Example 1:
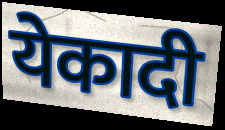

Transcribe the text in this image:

येकादी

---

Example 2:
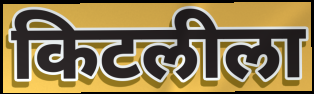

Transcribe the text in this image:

किटलीला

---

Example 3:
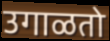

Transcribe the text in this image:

उगाळतो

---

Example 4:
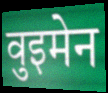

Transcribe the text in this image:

वुइमेन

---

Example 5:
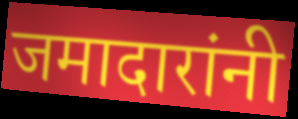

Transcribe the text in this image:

जमादारांनी